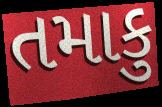
તમાકુ